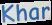
Khar